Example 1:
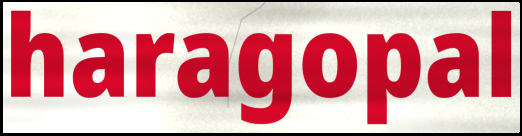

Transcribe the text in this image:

haragopal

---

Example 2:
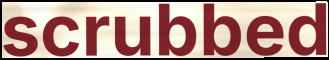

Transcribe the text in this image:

scrubbed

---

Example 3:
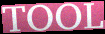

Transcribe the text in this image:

TOOL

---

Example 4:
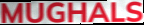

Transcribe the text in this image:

MUGHALS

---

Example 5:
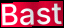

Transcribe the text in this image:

Bast